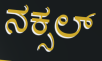
ನಕ್ಸಲ್